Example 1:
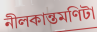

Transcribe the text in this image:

নীলকান্তমণিটা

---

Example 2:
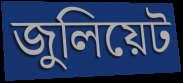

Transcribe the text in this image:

জুলিয়েট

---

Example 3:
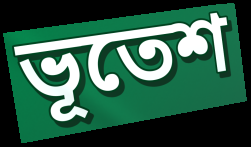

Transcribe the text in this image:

ভূতেশ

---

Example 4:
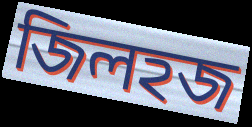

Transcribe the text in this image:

জিলহজ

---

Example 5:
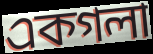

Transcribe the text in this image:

একগলা